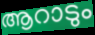
ആറാടും